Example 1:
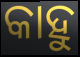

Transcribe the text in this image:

କାହୁ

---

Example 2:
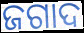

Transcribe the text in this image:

ଜଗାଦ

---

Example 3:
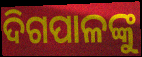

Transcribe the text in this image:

ଦିଗପାଳଙ୍କୁ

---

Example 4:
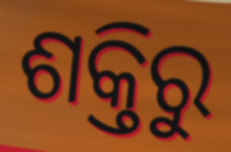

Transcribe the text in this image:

ଶକ୍ତିରୁ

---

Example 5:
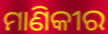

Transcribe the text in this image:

ମାଣିକୀର